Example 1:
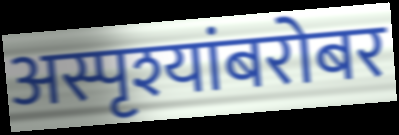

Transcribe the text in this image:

अस्पृश्यांबरोबर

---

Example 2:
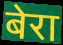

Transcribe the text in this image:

बेरा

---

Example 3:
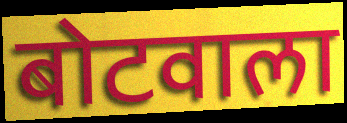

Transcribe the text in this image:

बोटवाला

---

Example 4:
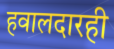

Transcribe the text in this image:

हवालदारही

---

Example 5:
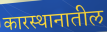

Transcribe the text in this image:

कारस्थानातील